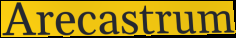
Arecastrum